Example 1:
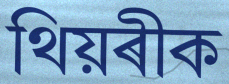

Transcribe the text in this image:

থিয়ৰীক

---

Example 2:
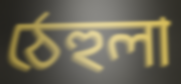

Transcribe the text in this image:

ঠেহুলা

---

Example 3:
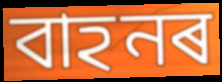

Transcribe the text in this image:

বাহনৰ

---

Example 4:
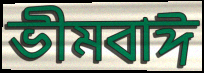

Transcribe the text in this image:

ভীমবাঈ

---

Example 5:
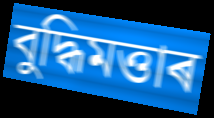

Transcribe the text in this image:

বুদ্ধিমত্তাৰ